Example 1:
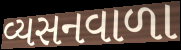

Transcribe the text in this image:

વ્યસનવાળા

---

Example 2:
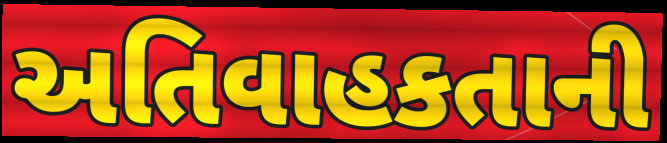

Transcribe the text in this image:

અતિવાહકતાની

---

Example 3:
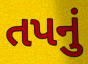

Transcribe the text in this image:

તપનું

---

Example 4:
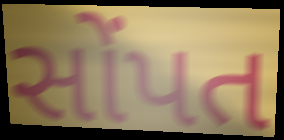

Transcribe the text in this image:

સોંપત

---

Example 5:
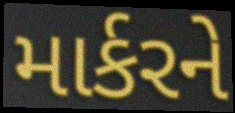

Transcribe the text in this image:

માર્કરને